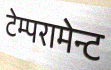
टेम्परामेन्ट